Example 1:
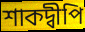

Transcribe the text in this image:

শাকদ্বীপি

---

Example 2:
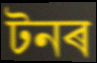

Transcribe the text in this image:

টনৰ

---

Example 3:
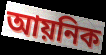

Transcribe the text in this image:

আয়নিক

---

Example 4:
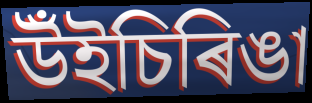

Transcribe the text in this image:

উঁইচিৰিঙা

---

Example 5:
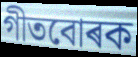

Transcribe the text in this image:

গীতবোৰক